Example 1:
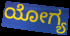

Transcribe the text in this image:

ಯೋಗ್ಯ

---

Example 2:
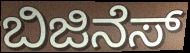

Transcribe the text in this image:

ಬಿಜಿನೆಸ್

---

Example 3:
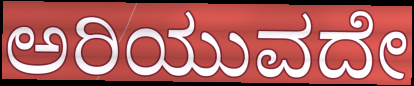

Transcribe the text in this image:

ಅರಿಯುವದೇ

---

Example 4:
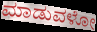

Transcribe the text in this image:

ಮಾಡುವಳೋ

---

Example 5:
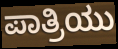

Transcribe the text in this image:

ಪಾತ್ರಿಯು